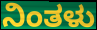
ನಿಂತಳು